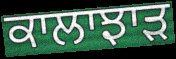
ਕਾਲਾਝਾਡ਼